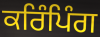
ਕਰਿੰਪਿੰਗ